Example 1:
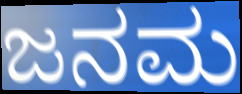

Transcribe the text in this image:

ಜನಮ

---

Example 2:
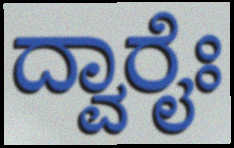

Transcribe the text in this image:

ದ್ವಾರೈಃ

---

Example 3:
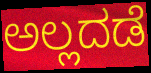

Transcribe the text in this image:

ಅಲ್ಲದಡೆ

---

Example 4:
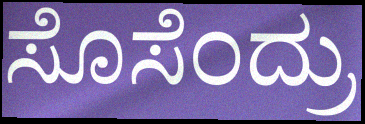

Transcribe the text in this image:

ಸೊಸೆಂದ್ರು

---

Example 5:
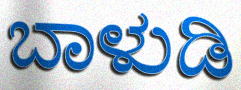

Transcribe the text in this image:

ಬಾಳುಡಿ